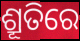
ଶ୍ରୂତିରେ